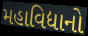
મહાવિદ્યાનો